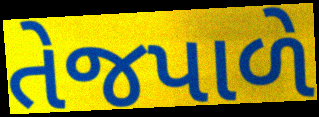
તેજપાળે